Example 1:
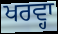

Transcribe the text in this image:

ਖਰਵ੍ਹਾ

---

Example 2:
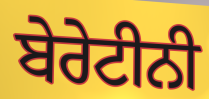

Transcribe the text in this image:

ਬੇਰੇਟੀਨੀ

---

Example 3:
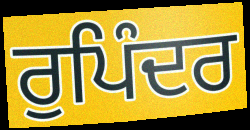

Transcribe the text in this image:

ਰੁਪਿੰਦਰ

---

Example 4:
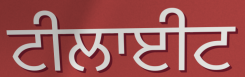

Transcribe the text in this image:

ਟੀਲਾਈਟ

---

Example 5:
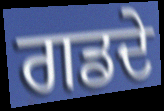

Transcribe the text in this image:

ਗਡਦੇ